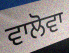
ਵਾਲੋਵਾ